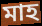
মাহ